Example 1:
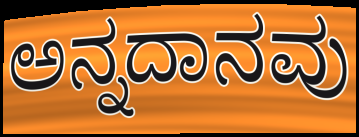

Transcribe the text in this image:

ಅನ್ನದಾನವು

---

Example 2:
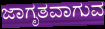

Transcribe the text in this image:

ಜಾಗೃತವಾಗುವ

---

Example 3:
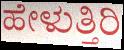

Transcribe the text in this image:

ಹೇಳುತ್ತಿರಿ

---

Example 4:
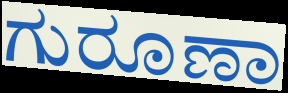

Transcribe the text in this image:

ಗುರೂಣಾ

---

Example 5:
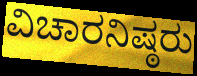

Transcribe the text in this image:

ವಿಚಾರನಿಷ್ಠರು